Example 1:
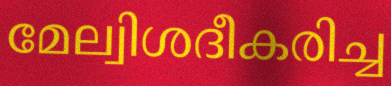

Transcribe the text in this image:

മേല്വിശദീകരിച്ച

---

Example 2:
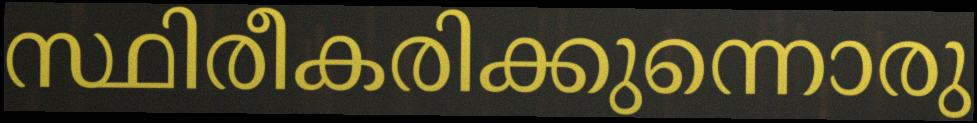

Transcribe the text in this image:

സ്ഥിരീകരിക്കുന്നൊരു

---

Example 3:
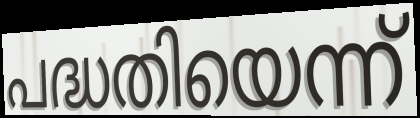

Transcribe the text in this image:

പദ്ധതിയെന്ന്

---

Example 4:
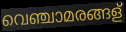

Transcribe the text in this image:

വെഞ്ചാമരങ്ങള്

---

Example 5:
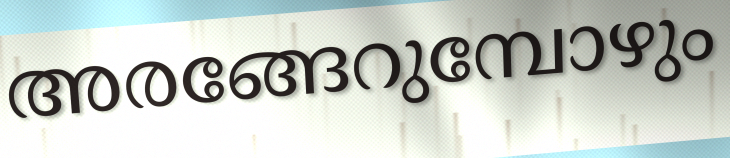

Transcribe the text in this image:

അരങ്ങേറുമ്പോഴും